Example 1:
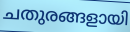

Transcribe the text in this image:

ചതുരങ്ങളായി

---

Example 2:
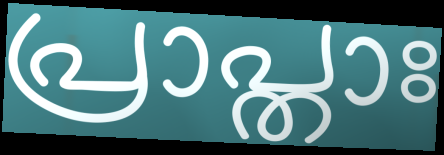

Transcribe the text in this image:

പ്രാപ്താഃ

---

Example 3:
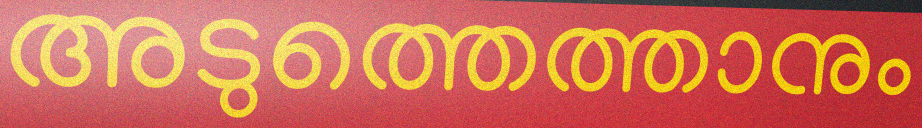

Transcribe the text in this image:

അടുത്തെത്താനും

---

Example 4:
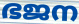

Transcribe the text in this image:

ഭജന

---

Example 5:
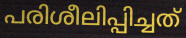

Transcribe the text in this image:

പരിശീലിപ്പിച്ചത്